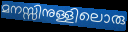
മനസ്സിനുള്ളിലൊരു